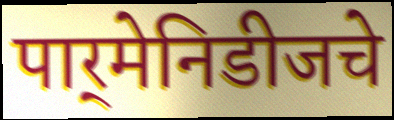
पार्मेनिडीजचे